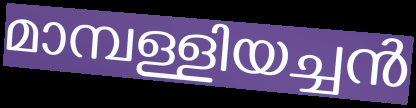
മാമ്പള്ളിയച്ചൻ